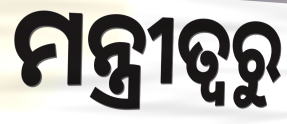
ମନ୍ତ୍ରୀତ୍ୱରୁ